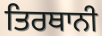
ਤਿਰਥਾਨੀ